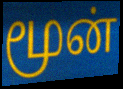
மூன்